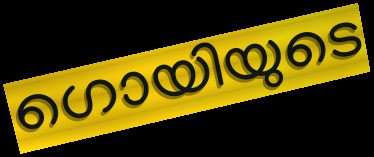
ഗൊയിയുടെ